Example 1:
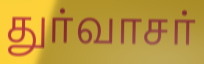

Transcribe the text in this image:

துர்வாசர்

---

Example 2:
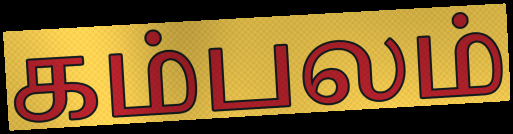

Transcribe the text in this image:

கம்பலம்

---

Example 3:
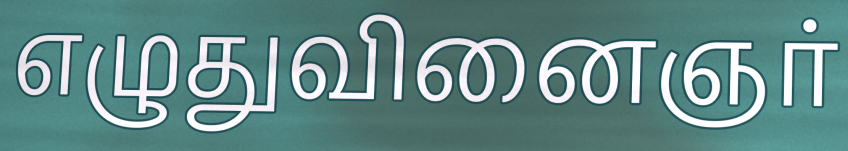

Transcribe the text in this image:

எழுதுவினைஞர்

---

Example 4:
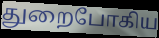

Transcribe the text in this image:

துறைபோகிய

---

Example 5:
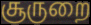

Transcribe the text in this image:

சூருறை